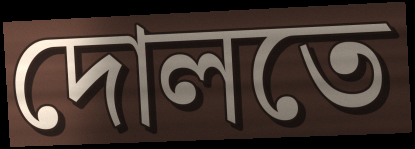
দোলতে